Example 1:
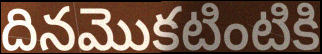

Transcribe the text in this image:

దినమొకటింటికి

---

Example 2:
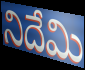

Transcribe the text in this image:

నిదేమి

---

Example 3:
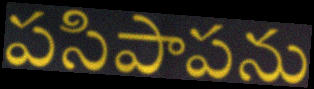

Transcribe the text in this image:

పసిపాపను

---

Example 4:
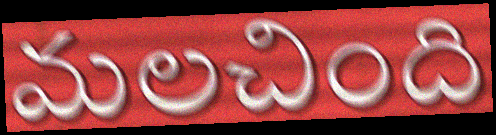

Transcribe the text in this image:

మలచింది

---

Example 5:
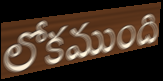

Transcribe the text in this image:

లోకముంది